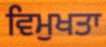
ਵਿਮੁਖਤਾ